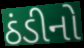
ઠંડીનો